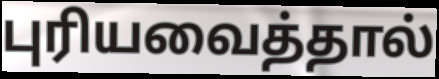
புரியவைத்தால்